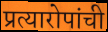
प्रत्यारोपांची